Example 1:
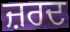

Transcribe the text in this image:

ਜ਼ਰਦ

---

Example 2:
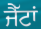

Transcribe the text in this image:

ਜੈੱਟਾਂ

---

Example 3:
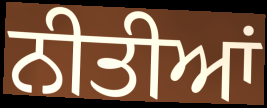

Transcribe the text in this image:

ਨੀਤੀਆਂ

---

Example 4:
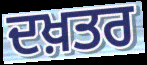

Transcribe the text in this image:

ਦਖ਼ਤਰ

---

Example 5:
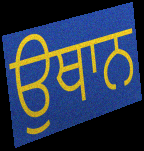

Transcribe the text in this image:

ਉਥਾਨ